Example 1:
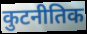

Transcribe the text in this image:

कुटनीतिक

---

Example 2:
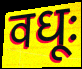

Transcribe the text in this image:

वधूः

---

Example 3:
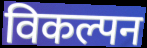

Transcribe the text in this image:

विकल्पन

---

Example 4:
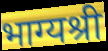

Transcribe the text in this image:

भाग्यश्री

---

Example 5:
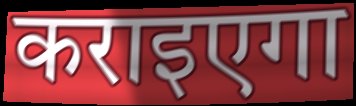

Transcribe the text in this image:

कराइएगा